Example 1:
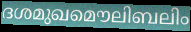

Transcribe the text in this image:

ദശമുഖമൌലിബലിം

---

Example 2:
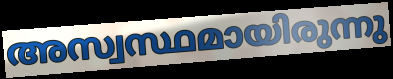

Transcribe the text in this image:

അസ്വസ്ഥമായിരുന്നു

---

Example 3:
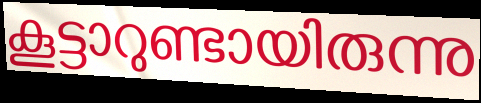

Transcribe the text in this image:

കൂട്ടാറുണ്ടായിരുന്നു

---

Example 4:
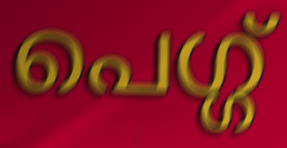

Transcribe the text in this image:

പെഗ്ഗ്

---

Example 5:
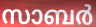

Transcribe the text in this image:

സാബർ